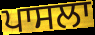
ਪਾਸਲਾ